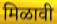
मिळावी